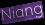
Niang